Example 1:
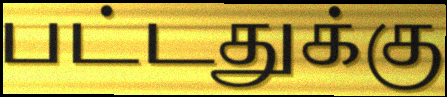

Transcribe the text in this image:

பட்டதுக்கு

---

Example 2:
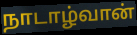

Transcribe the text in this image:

நாடாழ்வான்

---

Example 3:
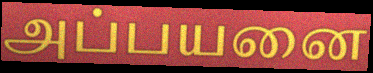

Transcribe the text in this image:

அப்பயனை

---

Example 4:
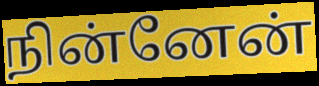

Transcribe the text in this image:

நின்னேன்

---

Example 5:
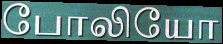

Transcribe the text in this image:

போலியோ